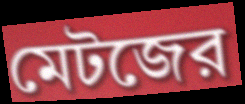
মেটজের